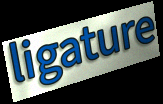
ligature